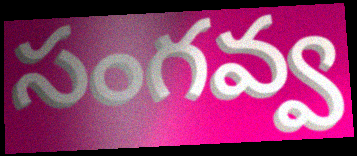
సంగవ్వ